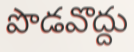
పొడవొద్దు